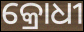
କ୍ରୋଧୀ